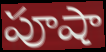
పూషా